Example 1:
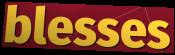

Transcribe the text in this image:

blesses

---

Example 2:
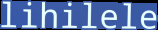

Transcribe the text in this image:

lihilele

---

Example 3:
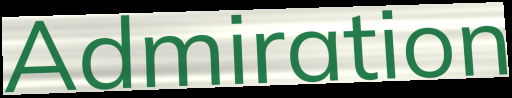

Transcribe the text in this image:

Admiration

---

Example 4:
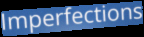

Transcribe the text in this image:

Imperfections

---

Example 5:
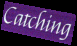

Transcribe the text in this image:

Catching